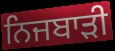
ਨਿਜਬਾੜੀ